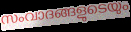
സംവാദങ്ങളുടെയും